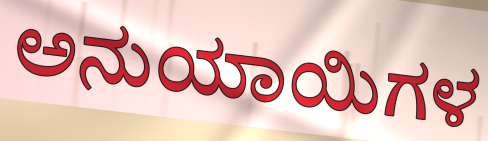
ಅನುಯಾಯಿಗಳ